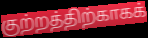
குற்றத்திற்காகக்